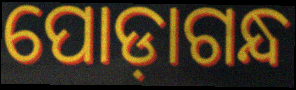
ପୋଡ଼ାଗନ୍ଧ